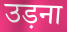
उड़ना